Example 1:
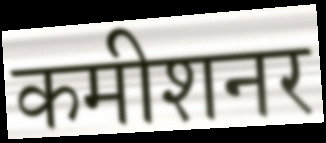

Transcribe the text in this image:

कमीशनर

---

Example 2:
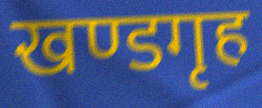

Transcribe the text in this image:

खण्डगृह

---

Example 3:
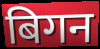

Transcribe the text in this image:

बिगन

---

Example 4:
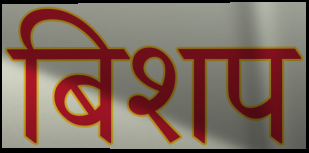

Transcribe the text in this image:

बिशप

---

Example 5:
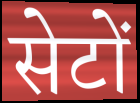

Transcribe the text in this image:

सेटों